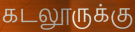
கடலூருக்கு